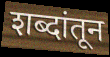
शब्दांतून